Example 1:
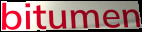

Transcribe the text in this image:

bitumen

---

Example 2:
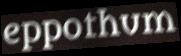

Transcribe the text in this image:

eppothum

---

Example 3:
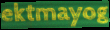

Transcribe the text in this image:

ektmayog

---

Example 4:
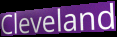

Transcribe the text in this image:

Cleveland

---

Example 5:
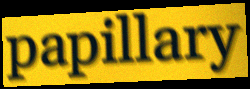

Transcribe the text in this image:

papillary